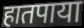
हातपाया